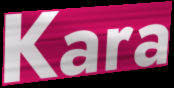
Kara